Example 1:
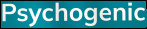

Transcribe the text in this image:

Psychogenic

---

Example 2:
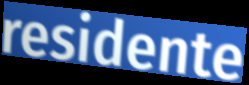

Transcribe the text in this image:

residente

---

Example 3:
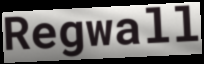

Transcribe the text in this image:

Regwall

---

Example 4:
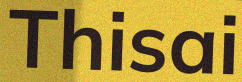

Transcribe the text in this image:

Thisai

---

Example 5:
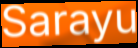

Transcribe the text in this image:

Sarayu